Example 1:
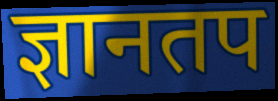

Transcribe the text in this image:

ज्ञानतप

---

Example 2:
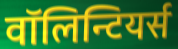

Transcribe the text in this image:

वॉलिन्टियर्स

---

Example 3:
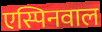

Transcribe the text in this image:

एस्पिनवाल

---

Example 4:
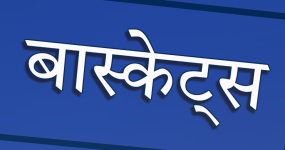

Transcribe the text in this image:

बास्केट्स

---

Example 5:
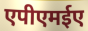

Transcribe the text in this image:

एपीएमईए